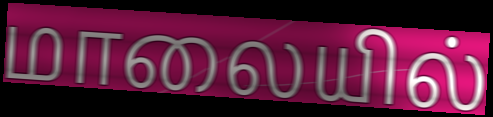
மாலையில்